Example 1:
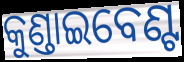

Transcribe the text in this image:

କୁଣ୍ଡାଇବେଣ୍ଟ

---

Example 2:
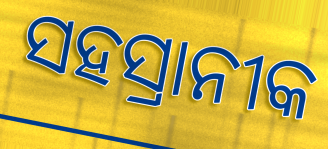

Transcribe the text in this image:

ସହସ୍ରାନୀକ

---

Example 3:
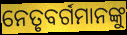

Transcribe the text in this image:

ନେତୃବର୍ଗମାନଙ୍କୁ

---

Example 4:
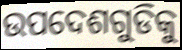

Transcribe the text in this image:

ଉପଦେଶଗୁଡିକୁ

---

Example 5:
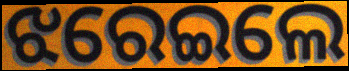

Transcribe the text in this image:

ଝରେଇଲେ